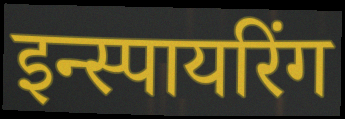
इन्स्पायरिंग